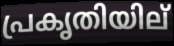
പ്രകൃതിയില്